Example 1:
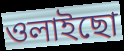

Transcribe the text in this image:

ওলাইছো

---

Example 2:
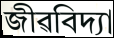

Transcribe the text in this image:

জীৱবিদ্যা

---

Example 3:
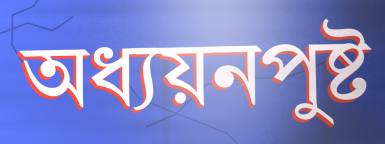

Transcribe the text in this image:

অধ্যয়নপুষ্ট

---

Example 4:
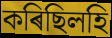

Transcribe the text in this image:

কৰিছিলহি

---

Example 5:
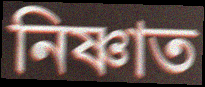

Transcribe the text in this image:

নিষ্ণাত